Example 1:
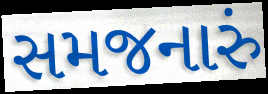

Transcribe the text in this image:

સમજનારું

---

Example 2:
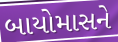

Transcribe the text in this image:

બાયોમાસને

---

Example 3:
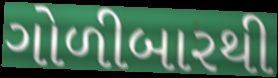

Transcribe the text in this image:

ગોળીબારથી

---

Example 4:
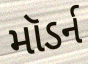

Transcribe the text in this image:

મૉડર્ન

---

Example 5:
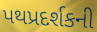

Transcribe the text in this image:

પથપ્રદર્શકની